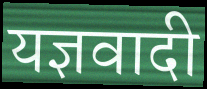
यज्ञवादी